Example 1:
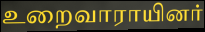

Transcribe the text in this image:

உறைவாராயினர்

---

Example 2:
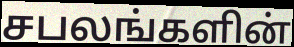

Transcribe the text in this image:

சபலங்களின்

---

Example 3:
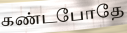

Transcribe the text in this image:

கண்டபோதே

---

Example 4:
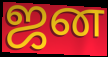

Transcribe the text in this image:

ஜன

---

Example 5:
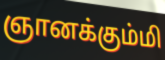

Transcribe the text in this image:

ஞானக்கும்மி